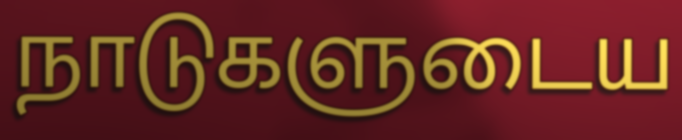
நாடுகளுடைய